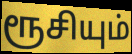
ரூசியும்